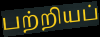
பற்றியப்